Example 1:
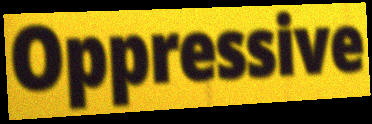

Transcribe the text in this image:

Oppressive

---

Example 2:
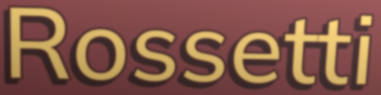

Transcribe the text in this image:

Rossetti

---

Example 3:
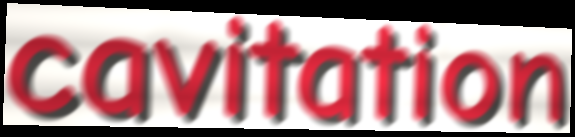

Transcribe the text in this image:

cavitation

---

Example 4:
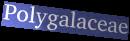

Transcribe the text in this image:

Polygalaceae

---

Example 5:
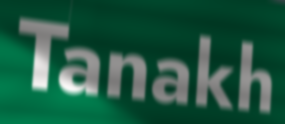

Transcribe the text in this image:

Tanakh